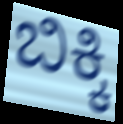
ಬಿಕ್ಕಿ